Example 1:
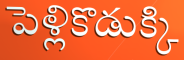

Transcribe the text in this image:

పెళ్లికొడుక్కి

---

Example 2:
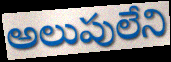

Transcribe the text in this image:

అలుపులేని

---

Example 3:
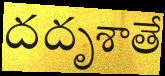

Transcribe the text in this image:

దదృశాతే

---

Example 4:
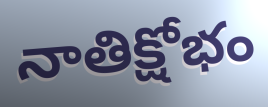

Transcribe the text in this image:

నాతిక్షోభం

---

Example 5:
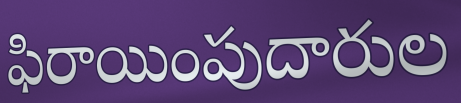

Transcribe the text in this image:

ఫిరాయింపుదారుల